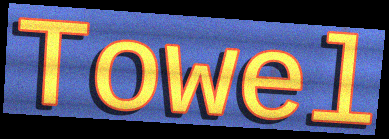
Towel